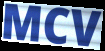
MCV